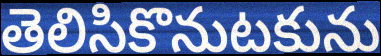
తెలిసికొనుటకును